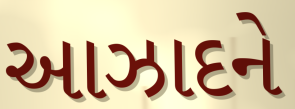
આઝાદને